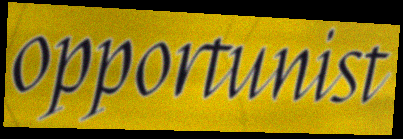
opportunist